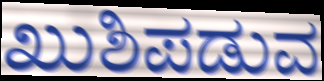
ಖುಶಿಪಡುವ